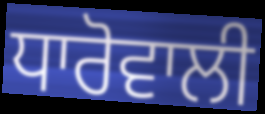
ਧਾਰੋਵਾਲੀ